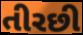
તીરછી